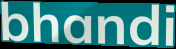
bhandi